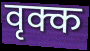
वृक्क